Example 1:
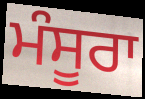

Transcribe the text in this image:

ਮੰਸੂਰਾ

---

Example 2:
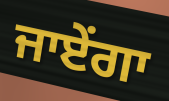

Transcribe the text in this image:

ਜਾਏਂਗਾ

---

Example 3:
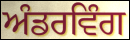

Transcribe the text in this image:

ਅੰਡਰਵਿੰਗ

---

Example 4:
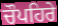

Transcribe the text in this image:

ਚੌਪਹਿਰੇ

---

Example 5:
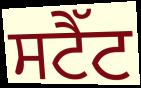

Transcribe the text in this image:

ਸਟੈੱਟ